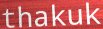
thakuk